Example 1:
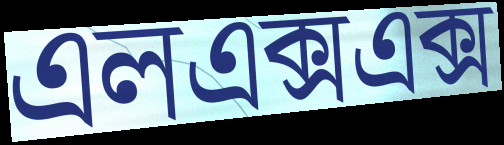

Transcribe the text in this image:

এলএক্সএক্স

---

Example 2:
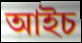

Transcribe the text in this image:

আইচ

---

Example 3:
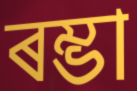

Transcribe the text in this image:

ৰম্ভা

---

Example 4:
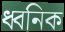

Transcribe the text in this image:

ধ্বনিক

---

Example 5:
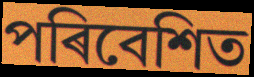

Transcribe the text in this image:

পৰিবেশিত